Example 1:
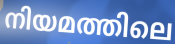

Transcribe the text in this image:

നിയമത്തിലെ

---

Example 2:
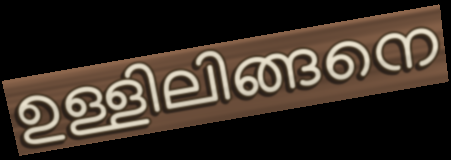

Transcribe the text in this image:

ഉള്ളിലിങ്ങനെ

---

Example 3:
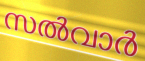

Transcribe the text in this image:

സൽവാർ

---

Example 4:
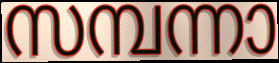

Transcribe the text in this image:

സമ്പന്നാ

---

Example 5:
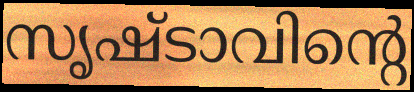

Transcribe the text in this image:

സൃഷ്ടാവിന്റെ